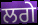
ਲਗੇ